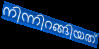
നിന്നിറങ്ങിയത്